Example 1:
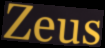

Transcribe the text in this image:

Zeus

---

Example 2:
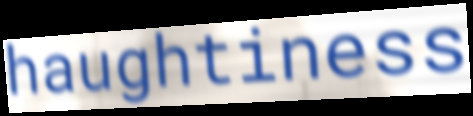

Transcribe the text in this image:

haughtiness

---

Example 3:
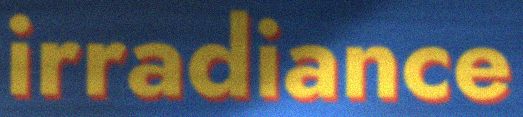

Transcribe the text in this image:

irradiance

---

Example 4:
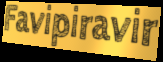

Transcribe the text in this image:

Favipiravir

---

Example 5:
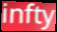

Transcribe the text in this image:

infty